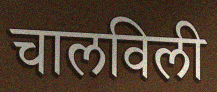
चालविली